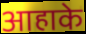
आहाके